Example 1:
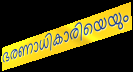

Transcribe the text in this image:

ഭരണാധികാരിയെയും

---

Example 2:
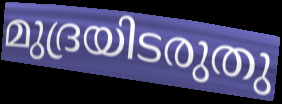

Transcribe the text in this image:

മുദ്രയിടരുതു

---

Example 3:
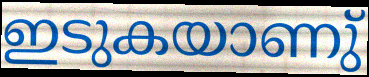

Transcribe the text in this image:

ഇടുകയാണു്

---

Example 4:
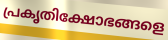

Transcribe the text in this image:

പ്രകൃതിക്ഷോഭങ്ങളെ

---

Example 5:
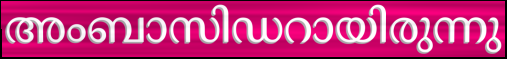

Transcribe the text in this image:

അംബാസിഡറായിരുന്നു